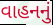
વાહનનું